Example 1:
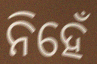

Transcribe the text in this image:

ନିହେଁ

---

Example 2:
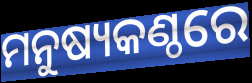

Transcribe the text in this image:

ମନୁଷ୍ୟକଣ୍ଠରେ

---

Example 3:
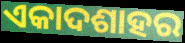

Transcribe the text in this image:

ଏକାଦଶାହର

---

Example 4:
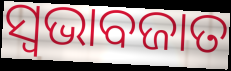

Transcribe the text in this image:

ସ୍ୱଭାବଜାତ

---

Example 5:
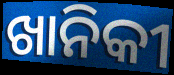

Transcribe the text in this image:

ଖାନିକୀ